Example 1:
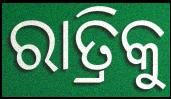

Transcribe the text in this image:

ରାତ୍ରିକୁ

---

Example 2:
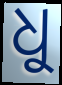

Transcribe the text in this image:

ଧୁ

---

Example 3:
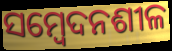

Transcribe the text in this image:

ସମ୍ବେଦନଶୀଳ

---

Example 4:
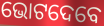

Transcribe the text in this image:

ଭୋଟଦେବେ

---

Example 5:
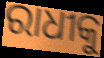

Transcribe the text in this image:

ରାଧୀକୁ